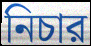
নিচার